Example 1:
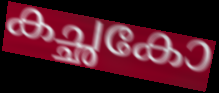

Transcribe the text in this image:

കച്ഛകോ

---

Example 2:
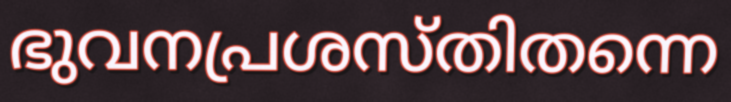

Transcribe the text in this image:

ഭുവനപ്രശസ്തിതന്നെ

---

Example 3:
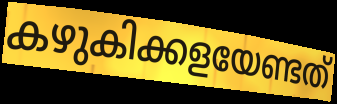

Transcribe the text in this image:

കഴുകിക്കളയേണ്ടത്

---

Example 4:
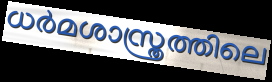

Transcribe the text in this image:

ധർമശാസ്ത്രത്തിലെ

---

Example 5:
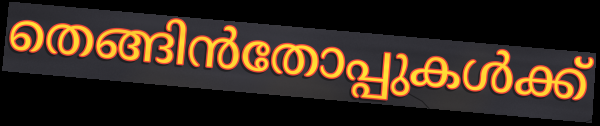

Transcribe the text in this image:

തെങ്ങിൻതോപ്പുകൾക്ക്